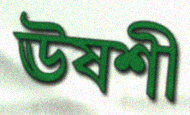
ঊষশী